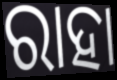
ରାହା